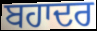
ਬਹਾਦਰ